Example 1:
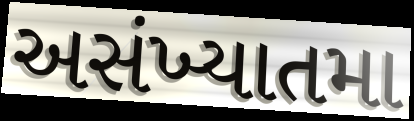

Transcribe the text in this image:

અસંખ્યાતમા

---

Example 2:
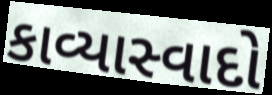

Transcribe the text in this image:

કાવ્યાસ્વાદો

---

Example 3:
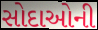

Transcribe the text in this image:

સોદાઓની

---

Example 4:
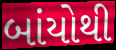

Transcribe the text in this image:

બાંયોથી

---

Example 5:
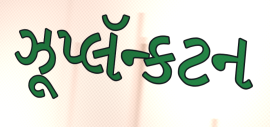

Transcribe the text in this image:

ઝૂપ્લૅન્કટન